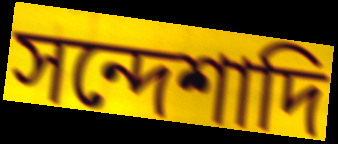
সন্দেশাদি